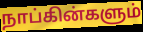
நாப்கின்களும்